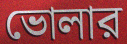
ভোলার